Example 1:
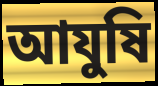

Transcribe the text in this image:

আযুষি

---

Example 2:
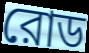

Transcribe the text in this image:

রোড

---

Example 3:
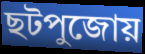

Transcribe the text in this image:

ছটপুজোয়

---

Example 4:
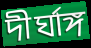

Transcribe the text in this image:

দীর্ঘাঙ্গ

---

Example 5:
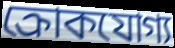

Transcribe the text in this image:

ক্রোকযোগ্য